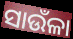
ସାଉଁଳା